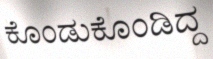
ಕೊಂಡುಕೊಂಡಿದ್ದ